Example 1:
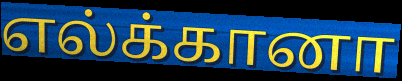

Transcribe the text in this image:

எல்க்கானா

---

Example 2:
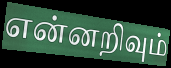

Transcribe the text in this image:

என்னறிவும்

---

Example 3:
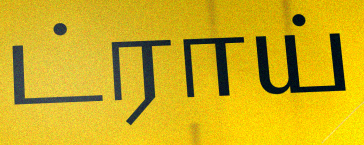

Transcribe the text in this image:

ட்ராய்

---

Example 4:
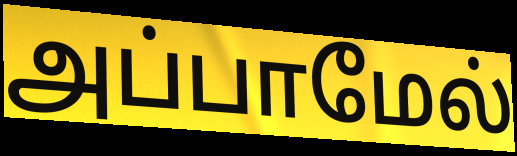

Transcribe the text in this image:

அப்பாமேல்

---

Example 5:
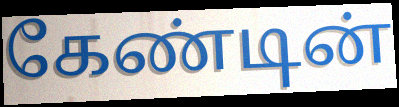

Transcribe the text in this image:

கேண்டின்